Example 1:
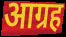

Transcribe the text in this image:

आग्रह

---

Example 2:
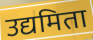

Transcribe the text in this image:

उद्यमिता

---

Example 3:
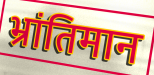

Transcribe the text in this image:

भ्रांतिमान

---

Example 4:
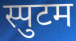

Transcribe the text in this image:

स्पुटम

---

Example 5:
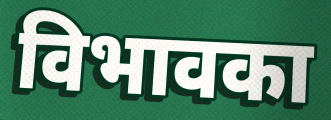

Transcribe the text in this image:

विभावका